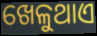
ଖେଳୁଥାଏ